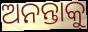
ଅନନ୍ତାକୁ